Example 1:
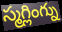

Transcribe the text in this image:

స్మగ్లింగ్ను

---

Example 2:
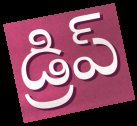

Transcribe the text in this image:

డ్రిప్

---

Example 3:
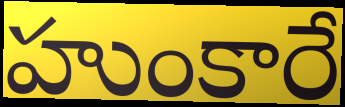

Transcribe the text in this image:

హుంకారే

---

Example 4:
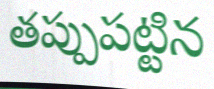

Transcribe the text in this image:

తప్పుపట్టిన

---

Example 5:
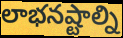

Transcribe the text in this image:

లాభనష్టాల్ని